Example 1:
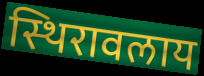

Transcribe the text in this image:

स्थिरावलाय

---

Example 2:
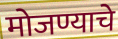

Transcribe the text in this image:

मोजण्याचे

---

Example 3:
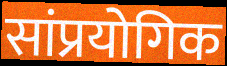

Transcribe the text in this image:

सांप्रयोगिक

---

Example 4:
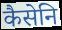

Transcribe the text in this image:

कैसेनि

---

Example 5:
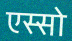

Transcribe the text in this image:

एस्सो